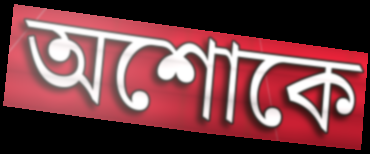
অশোকে